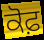
ਕੋਫ਼